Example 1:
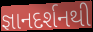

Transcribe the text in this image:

જ્ઞાનદર્શનથી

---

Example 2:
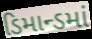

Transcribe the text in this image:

ડિમાન્ડમાં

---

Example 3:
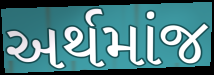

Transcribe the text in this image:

અર્થમાંજ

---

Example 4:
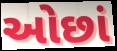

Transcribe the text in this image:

ઓછાં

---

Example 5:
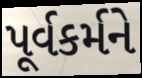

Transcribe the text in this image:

પૂર્વકર્મને